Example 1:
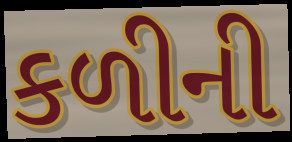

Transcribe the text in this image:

કળીની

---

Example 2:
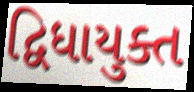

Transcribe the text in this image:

દ્વિધાયુક્ત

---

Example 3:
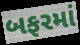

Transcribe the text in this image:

બફરમાં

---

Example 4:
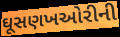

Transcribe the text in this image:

ઘૂસણખઓરીની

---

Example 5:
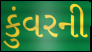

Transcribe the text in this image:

કુંવરની